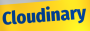
Cloudinary